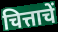
चित्ताचें